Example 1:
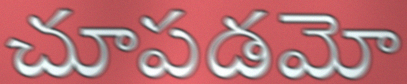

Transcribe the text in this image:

చూపడమో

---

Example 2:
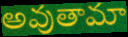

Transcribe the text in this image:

అవుతామా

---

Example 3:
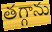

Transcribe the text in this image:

తగ్గాను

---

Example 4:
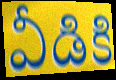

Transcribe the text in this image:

వీడికి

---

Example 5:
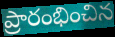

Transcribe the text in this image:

ప్రారంభించిన